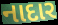
નાદાર